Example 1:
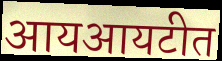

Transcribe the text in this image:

आयआयटीत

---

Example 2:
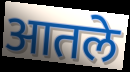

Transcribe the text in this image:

आतले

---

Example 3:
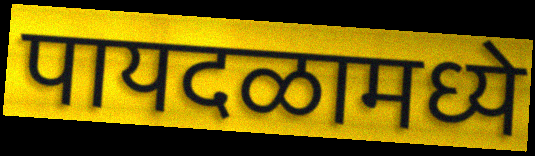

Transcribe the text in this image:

पायदळामध्ये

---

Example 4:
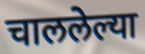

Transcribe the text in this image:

चाललेल्या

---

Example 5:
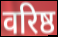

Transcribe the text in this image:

वरिष्ठ